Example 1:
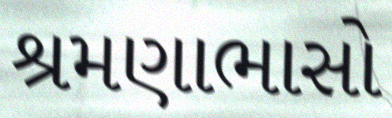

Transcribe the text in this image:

શ્રમણાભાસો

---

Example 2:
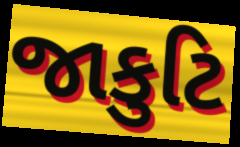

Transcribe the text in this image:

જાકુટિ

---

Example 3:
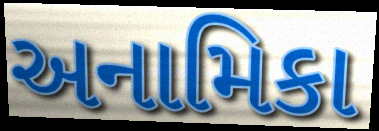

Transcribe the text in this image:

અનામિકા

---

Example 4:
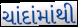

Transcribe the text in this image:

ચાંદાંમાંથી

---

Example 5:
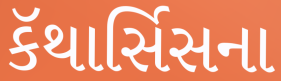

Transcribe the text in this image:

કૅથાર્સિસના